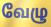
வேழு